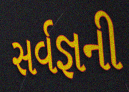
સર્વજ્ઞની